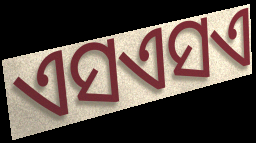
ଏସଏସଏ